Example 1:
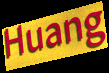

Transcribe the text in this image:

Huang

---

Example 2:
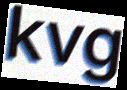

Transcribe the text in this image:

kvg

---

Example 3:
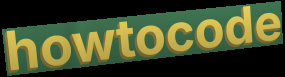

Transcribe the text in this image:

howtocode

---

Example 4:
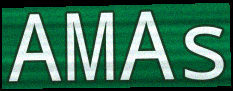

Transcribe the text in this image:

AMAs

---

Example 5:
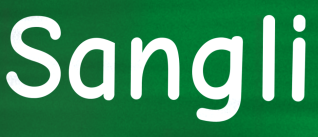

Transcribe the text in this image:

Sangli